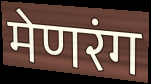
मेणरंग